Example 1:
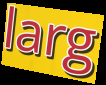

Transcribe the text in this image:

larg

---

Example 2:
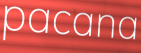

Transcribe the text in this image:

pacana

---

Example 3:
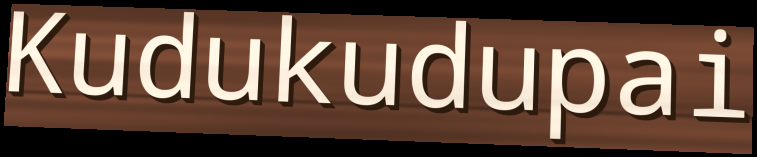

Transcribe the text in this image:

Kudukudupai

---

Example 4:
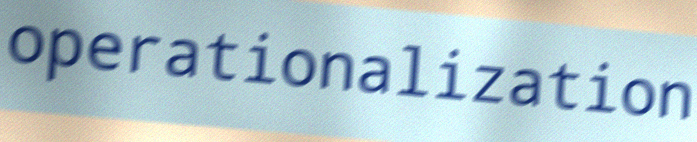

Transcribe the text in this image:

operationalization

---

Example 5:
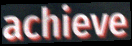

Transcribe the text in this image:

achieve